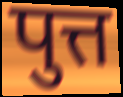
पुत्त